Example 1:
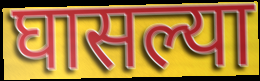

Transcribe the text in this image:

घासल्या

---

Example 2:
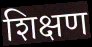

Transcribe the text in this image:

शिक्षण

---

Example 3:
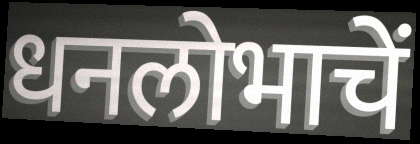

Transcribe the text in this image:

धनलोभाचें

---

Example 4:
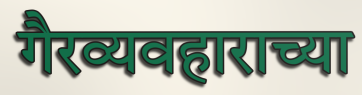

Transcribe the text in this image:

गैरव्यवहाराच्या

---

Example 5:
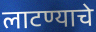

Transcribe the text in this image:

लाटण्याचे